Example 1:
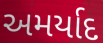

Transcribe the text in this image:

અમર્યાદ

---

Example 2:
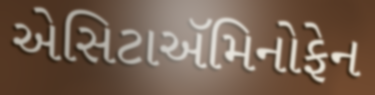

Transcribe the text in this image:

એસિટાઍમિનોફેન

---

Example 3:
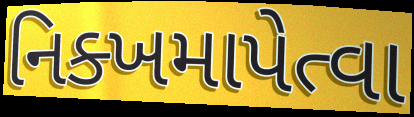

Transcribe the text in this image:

નિક્ખમાપેત્વા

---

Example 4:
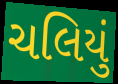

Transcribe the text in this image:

ચલિયું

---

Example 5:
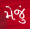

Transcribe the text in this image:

મેજું